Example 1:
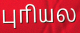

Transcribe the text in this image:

புரியல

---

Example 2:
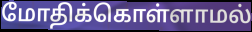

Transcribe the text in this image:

மோதிக்கொள்ளாமல்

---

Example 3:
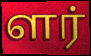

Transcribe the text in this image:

ளர்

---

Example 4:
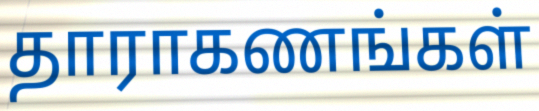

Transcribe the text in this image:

தாராகணங்கள்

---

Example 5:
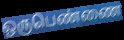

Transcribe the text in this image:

ஒருபெண்ணை